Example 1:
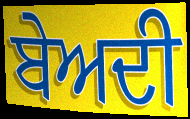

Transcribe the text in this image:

ਬੇਅਦੀ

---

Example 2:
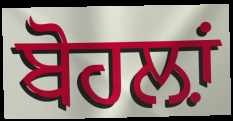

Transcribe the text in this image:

ਬੋਹਲ਼ਾਂ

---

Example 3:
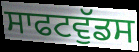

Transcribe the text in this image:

ਸਾਫਟਵੁੱਡਸ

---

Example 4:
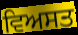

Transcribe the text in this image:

ਵਿਅਸਤ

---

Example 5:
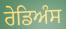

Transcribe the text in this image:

ਰੇਡਿਅੰਸ